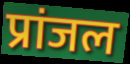
प्रांजल